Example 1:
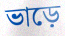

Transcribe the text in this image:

ভাড়ে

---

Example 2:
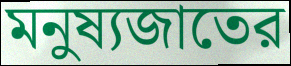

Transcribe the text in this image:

মনুষ্যজাতের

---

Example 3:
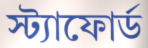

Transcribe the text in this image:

স্ট্যাফোর্ড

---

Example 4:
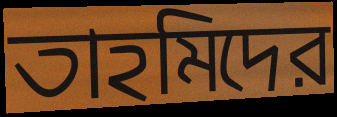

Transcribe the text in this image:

তাহমিদের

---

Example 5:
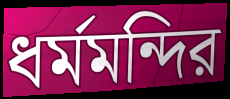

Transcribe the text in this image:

ধর্মমন্দির